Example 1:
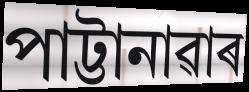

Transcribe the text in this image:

পাট্টানাৱাৰ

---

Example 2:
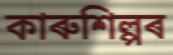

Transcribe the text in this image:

কাৰুশিল্পৰ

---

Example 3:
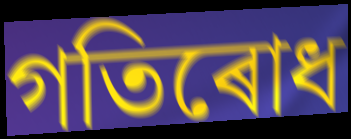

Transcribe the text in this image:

গতিৰোধ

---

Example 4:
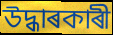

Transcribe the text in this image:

উদ্ধাৰকাৰী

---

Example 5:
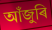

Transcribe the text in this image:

আঁজুৰি